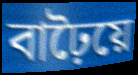
বাঢ়ৈয়ে